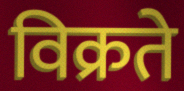
विक्रते